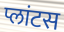
प्लांटस